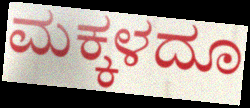
ಮಕ್ಕಳದೂ